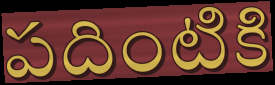
పదింటికి